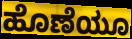
ಹೊಣೆಯೂ